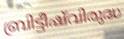
ബ്രിട്ടീഷ്‌വിരുദ്ധ